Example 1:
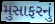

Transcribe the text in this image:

મુસાફરનું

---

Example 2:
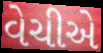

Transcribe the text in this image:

વેચીએ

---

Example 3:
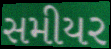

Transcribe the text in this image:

સમીયર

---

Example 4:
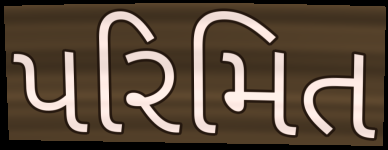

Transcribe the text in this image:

પરિમિત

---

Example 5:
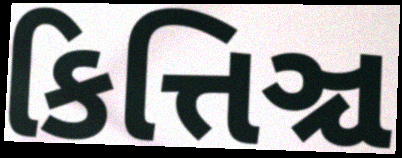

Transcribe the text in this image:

કિત્તિઞ્ચ